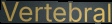
Vertebral